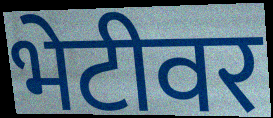
भेटीवर